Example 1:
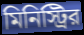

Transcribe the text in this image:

মিনিস্ট্রির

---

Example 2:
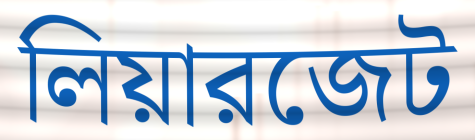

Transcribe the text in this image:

লিয়ারজেট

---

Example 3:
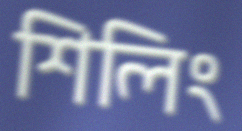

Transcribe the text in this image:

শিলিং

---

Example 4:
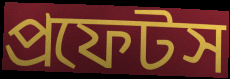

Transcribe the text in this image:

প্রফেটস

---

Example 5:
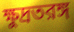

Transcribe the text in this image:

ক্ষুদ্রতরঙ্গ